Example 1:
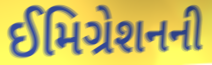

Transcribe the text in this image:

ઈમિગ્રેશનની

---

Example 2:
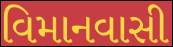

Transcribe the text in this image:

વિમાનવાસી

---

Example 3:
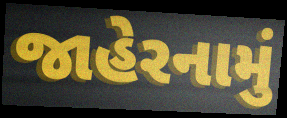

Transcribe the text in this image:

જાહેરનામું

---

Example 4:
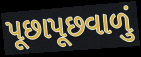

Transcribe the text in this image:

પૂછાપૂછવાળું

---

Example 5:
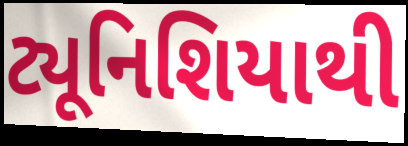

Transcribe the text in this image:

ટ્યૂનિશિયાથી